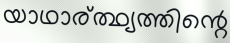
യാഥാര്ത്ഥ്യത്തിന്റെ